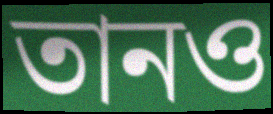
তানও